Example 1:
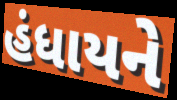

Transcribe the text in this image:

હંધાયને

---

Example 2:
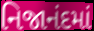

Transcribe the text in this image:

નિજાનંદમાં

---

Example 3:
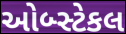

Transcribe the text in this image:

ઓબ્સ્ટેકલ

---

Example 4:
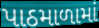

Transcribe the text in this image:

પાઠમાળામાં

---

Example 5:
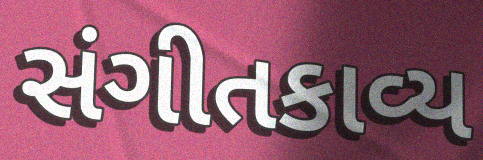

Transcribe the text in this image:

સંગીતકાવ્ય